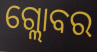
ଗ୍ଲୋବର